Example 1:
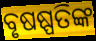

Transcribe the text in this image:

ବୃଷଷ୍ପତିଙ୍କ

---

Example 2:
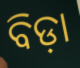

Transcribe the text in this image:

ବିଡ଼ା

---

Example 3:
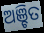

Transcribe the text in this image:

ଅଞ୍ଚିତ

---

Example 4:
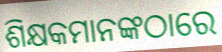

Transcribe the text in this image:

ଶିକ୍ଷକମାନଙ୍କଠାରେ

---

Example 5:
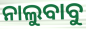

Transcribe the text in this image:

ନାଲୁବାବୁ